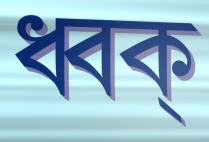
ধ্বক্